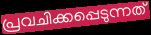
പ്രവചിക്കപ്പെടുന്നത്